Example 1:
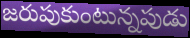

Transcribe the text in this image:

జరుపుకుంటున్నపుడు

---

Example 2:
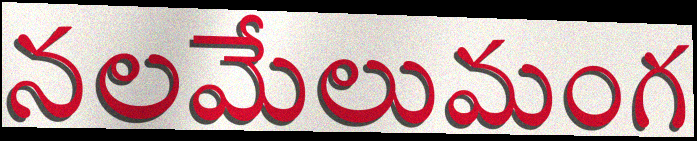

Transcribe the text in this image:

నలమేలుమంగ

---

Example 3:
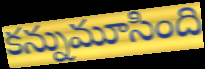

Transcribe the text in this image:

కన్నుమూసింది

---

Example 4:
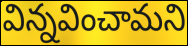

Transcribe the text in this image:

విన్నవించామని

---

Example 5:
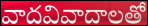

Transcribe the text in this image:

వాదవివాదాలతో